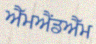
ਐੱਮਐਂਡਐੱਮ